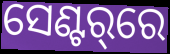
ସେଣ୍ଟର୍‌ରେ